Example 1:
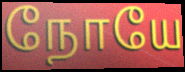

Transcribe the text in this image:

நோயே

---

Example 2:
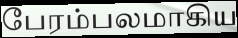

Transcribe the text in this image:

பேரம்பலமாகிய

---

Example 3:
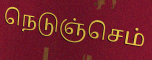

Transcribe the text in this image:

நெடுஞ்செம்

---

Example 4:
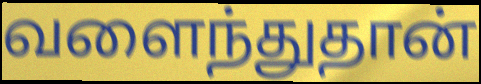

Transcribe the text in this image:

வளைந்துதான்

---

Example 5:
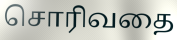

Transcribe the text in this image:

சொரிவதை